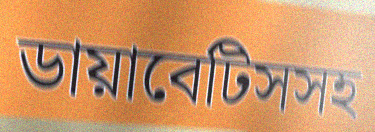
ডায়াবেটিসসহ